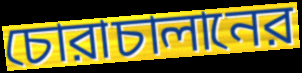
চোরাচালানের